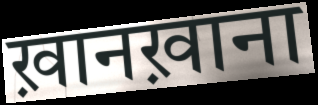
ख़ानख़ाना